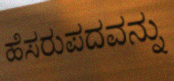
ಹೆಸರುಪದವನ್ನು